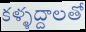
కళ్ళద్దాలతో